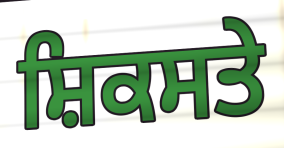
ਸ਼ਿਕਸਤੇ